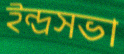
ইন্দ্রসভা